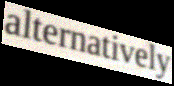
alternatively